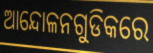
ଆନ୍ଦୋଳନଗୁଡିକରେ